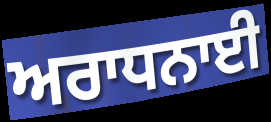
ਅਰਾਧਨਾਈ